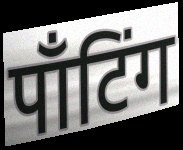
पाँटिंग